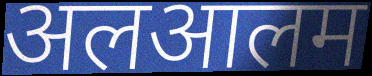
अलआलम